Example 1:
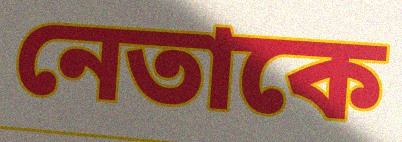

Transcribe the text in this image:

নেতাকে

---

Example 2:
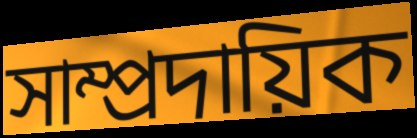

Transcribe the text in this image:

সাম্প্রদায়িক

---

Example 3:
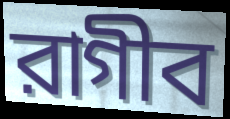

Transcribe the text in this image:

রাগীব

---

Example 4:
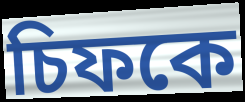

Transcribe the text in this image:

চিফকে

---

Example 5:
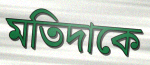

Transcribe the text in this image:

মতিদাকে